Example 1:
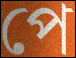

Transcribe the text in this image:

পে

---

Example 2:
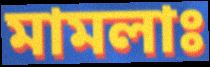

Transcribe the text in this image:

মামলাঃ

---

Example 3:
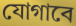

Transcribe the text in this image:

যোগাবে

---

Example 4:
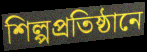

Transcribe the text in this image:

শিল্পপ্রতিষ্ঠানে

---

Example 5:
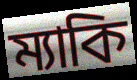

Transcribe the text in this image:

ম্যাকি